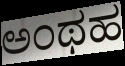
ಅಂಥಹ